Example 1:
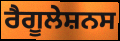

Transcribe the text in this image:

ਰੈਗੂਲੇਸ਼ਨਸ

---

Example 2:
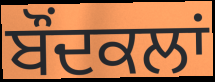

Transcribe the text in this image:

ਬੌਂਦਕਲਾਂ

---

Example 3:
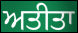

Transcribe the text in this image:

ਅਤੀਤਾ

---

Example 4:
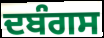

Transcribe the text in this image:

ਦਬੰਗਸ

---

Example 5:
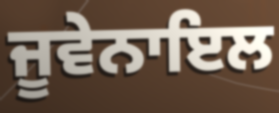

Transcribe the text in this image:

ਜੂਵੇਨਾਇਲ